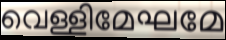
വെള്ളിമേഘമേ